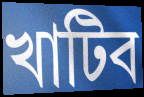
খাটিব